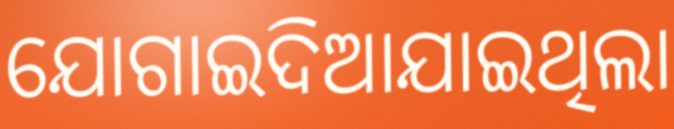
ଯୋଗାଇଦିଆଯାଇଥିଲା